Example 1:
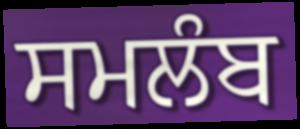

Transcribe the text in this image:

ਸਮਲੰਬ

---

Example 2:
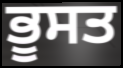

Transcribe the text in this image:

ਭੂਸਤ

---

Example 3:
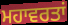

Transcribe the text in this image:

ਮਹਾਵਰਤਾਂ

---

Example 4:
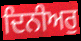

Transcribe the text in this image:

ਦਿਨੀਅਰੁ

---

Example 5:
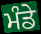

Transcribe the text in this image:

ਮੰਡੇ